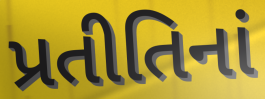
પ્રતીતિનાં